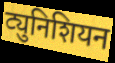
ट्युनिशियन